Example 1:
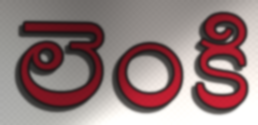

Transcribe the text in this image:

లెంకి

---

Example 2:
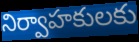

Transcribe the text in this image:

నిర్వాహకులకు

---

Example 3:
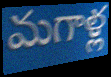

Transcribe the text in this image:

మగాళ్ల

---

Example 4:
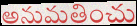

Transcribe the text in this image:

అనుమతించు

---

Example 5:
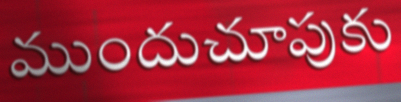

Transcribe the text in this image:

ముందుచూపుకు